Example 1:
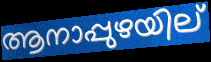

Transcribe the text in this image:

ആനാപ്പുഴയില്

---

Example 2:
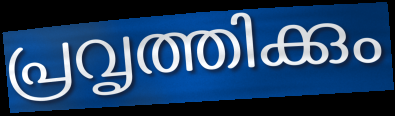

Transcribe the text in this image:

പ്രവൃത്തിക്കും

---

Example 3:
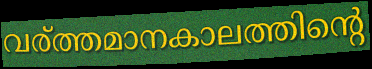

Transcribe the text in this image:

വര്ത്തമാനകാലത്തിന്റെ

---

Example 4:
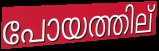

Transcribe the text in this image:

പോയത്തില്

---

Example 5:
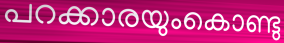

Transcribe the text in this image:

പറക്കാരയുംകൊണ്ടു